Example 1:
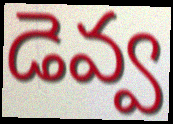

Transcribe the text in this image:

డెవ్వ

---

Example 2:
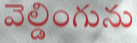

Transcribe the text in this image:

వెల్డింగును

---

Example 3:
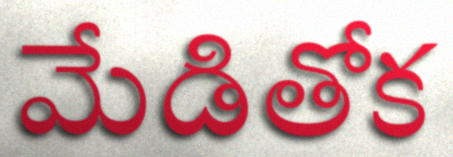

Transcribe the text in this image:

మేడితోక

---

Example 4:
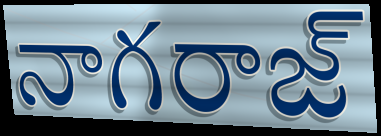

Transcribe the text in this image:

నాగరాజ్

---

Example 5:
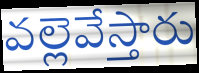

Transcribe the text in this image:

వల్లెవేస్తారు